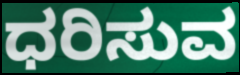
ಧರಿಸುವ